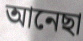
আনেছা